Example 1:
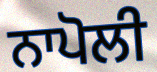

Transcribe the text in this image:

ਨਾਪੋਲੀ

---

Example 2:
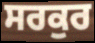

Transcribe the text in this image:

ਸਰਕੁਰ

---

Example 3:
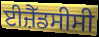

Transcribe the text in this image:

ਈਜ਼ੈੱਡਸੀਸੀ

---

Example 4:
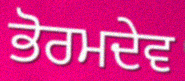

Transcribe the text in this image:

ਭੋਰਮਦੇਵ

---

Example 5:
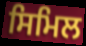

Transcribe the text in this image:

ਸਿਮਿਲ